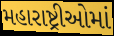
મહારાષ્ટ્રીઓમાં